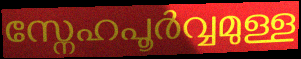
സ്നേഹപൂർവ്വമുള്ള